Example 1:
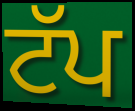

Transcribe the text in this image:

ਟੱਪ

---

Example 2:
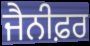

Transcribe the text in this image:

ਜੈਨੀਫ਼ਰ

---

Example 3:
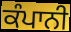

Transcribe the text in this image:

ਕੰਪਾਨੀ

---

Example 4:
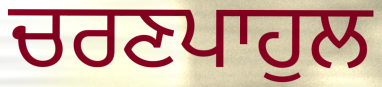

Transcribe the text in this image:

ਚਰਣਪਾਹੁਲ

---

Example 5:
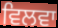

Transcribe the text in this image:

ਵਿਲਵਾ